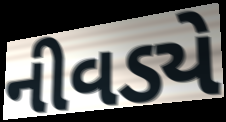
નીવડ્યે